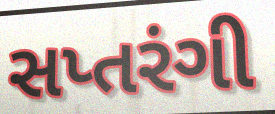
સપ્તરંગી